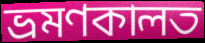
ভ্ৰমণকালত